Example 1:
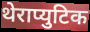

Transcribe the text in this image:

थेराप्युटिक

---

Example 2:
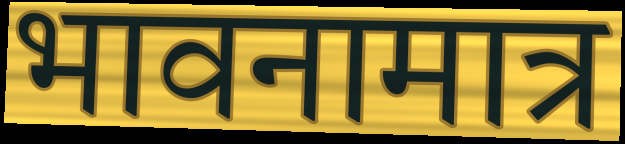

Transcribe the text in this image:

भावनामात्र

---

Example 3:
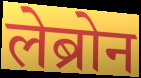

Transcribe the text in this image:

लेब्रोन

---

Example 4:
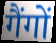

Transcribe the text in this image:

गैंगों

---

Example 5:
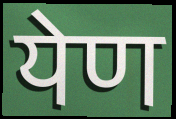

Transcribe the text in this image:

येण